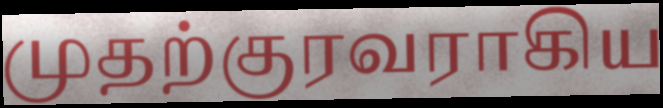
முதற்குரவராகிய